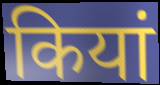
कियां